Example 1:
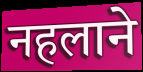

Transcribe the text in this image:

नहलाने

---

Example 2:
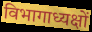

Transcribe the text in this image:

विभागाध्‍यक्षों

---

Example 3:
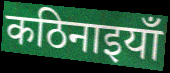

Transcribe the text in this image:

कठिनाइयाँ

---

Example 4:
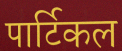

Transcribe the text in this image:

पार्टिकल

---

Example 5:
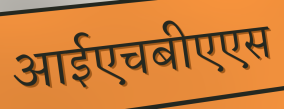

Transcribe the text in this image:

आईएचबीएएस